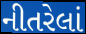
નીતરેલાં